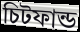
চিটফান্ড